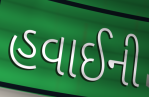
હવાઈની